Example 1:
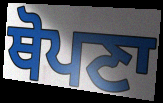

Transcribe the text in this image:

ਥੋਪਣਾ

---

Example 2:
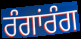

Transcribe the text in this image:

ਰੰਗਾਂਰੰਗ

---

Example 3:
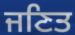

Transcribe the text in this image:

ਜਣਿਤ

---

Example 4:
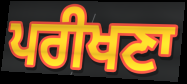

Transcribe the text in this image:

ਪਰੀਖਣਾ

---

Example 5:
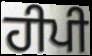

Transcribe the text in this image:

ਹੀਪੀ